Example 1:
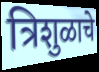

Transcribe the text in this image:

त्रिशुळाचे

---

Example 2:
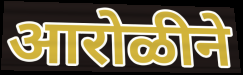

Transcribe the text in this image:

आरोळीने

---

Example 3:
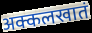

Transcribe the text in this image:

अक्कलखातं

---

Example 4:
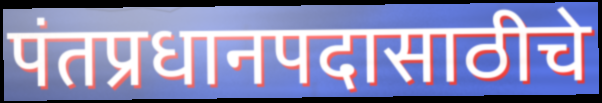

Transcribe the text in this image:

पंतप्रधानपदासाठीचे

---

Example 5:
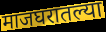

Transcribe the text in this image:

माजघरातल्या